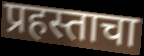
प्रहस्ताचा